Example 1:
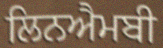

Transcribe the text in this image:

ਲਿਨਐਮਬੀ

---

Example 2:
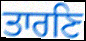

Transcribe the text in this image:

ਤਾਰਣਿ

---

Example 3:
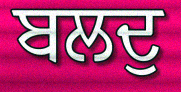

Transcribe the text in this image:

ਬਲਦੁ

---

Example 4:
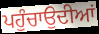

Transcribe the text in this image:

ਪਹੁੰਚਾਉਦੀਆਂ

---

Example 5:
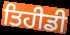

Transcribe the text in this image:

ਤਿਹੀਡੀ